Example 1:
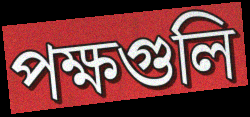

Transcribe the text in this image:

পক্ষগুলি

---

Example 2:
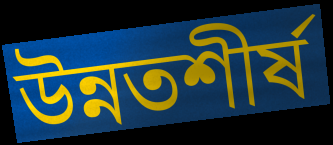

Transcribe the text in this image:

উন্নতশীর্ষ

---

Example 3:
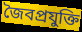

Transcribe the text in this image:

জৈবপ্রযুক্তি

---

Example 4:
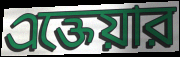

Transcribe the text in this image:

এক্তেয়ার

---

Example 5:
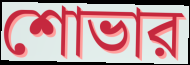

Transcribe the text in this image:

শোভার